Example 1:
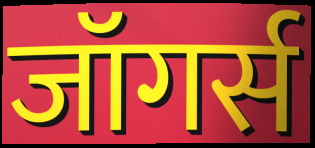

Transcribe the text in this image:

जॉगर्स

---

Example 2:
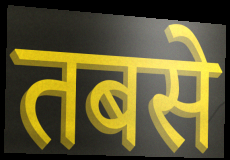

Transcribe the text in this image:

तबसे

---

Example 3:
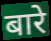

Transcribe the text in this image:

बारे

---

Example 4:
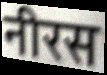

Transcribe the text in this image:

नीरस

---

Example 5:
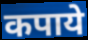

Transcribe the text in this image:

कपाये